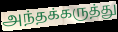
அந்தக்கருத்து